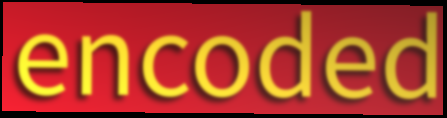
encoded